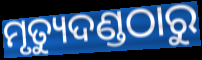
ମୃତ୍ୟୁଦଣ୍ଡଠାରୁ